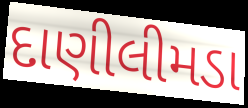
દાણીલીમડા